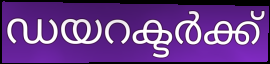
ഡയറക്ടർക്ക്